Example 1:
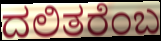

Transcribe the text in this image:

ದಲಿತರೆಂಬ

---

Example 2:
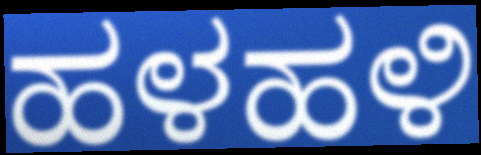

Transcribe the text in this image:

ಹಳಹಳಿ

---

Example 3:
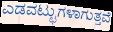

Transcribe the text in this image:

ಎಡವಟ್ಟುಗಳಾಗುತ್ತವೆ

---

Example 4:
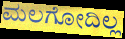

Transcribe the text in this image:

ಮಲಗೋದಿಲ್ಲ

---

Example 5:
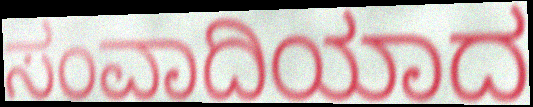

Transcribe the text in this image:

ಸಂವಾದಿಯಾದ